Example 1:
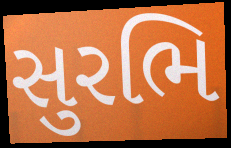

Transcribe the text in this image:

સુરભિ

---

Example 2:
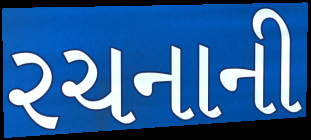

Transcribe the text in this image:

રચનાની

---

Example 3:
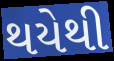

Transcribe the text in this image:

થયેથી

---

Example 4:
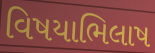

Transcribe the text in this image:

વિષયાભિલાષ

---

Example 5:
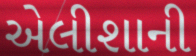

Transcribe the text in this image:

એલીશાની